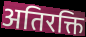
अतिरक्ति